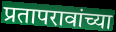
प्रतापरावांच्या